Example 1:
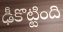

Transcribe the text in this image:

ఢీకొట్టింది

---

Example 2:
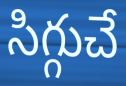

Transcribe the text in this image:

సిగ్గుచే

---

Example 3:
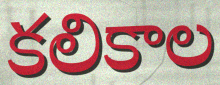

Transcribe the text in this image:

కలికాల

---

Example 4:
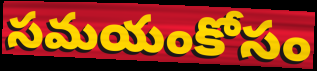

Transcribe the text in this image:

సమయంకోసం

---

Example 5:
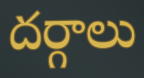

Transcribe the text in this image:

దర్గాలు